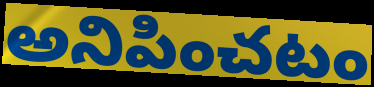
అనిపించటం